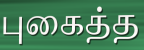
புகைத்த